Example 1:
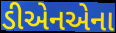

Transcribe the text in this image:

ડીએનએના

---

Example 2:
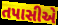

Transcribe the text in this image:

તપાસીએ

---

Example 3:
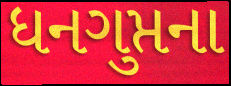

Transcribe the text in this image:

ધનગુપ્તના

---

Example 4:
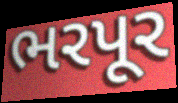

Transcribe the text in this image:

ભરપૂર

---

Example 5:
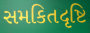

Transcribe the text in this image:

સમકિતદૃષ્ટિ